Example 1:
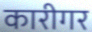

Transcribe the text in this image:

कारीगर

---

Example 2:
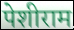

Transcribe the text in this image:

पेशीराम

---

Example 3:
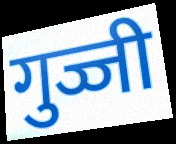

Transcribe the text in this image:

गुज्जी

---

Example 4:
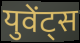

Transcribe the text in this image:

युवेंट्स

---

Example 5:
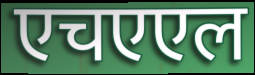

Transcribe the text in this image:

एचएएल